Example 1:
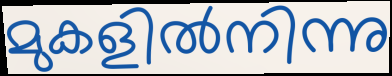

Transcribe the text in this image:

മുകളിൽനിന്നു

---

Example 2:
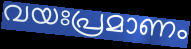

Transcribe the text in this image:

വയഃപ്രമാണം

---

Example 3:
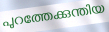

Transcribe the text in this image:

പുറത്തേക്കുന്തിയ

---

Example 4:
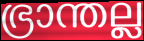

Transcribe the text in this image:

ഭ്രാന്തല്ല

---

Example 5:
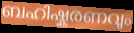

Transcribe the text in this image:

ബഹിഷ്കരണവും